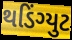
થડિંગ્યુટ